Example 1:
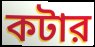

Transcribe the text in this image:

কটার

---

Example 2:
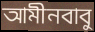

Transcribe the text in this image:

আমীনবাবু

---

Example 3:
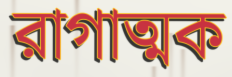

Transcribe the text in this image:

রাগাত্মক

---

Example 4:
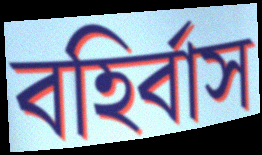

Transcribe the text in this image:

বহির্বাস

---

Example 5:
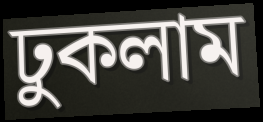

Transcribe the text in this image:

ঢুকলাম